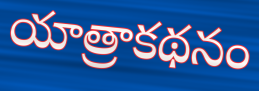
యాత్రాకథనం